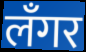
लँगर